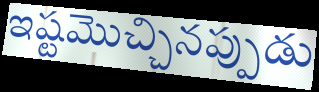
ఇష్టమొచ్చినప్పుడు